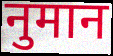
नुमान